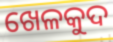
ଖେଳକୁଦ